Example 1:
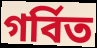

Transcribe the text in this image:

গৰ্বিত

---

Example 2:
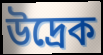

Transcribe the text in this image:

উদ্ৰেক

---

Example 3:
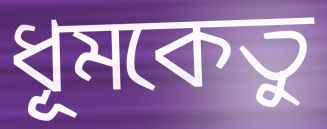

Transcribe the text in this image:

ধূমকেতু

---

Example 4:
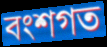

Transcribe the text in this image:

বংশগত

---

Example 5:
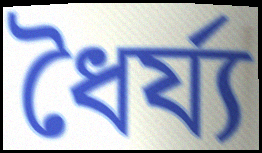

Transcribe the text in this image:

ধৈৰ্য্য